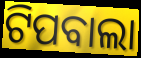
ଟିପବାଲା